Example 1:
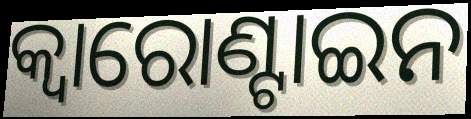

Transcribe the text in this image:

କ୍ୱାରୋଣ୍ଟାଇନ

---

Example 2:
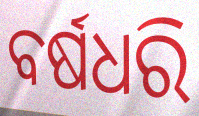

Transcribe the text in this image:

ବର୍ଷଧରି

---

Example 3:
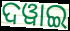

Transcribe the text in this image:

ଦୱାଇ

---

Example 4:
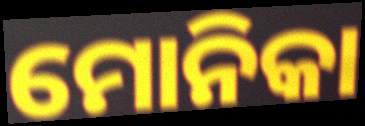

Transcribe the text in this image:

ମୋନିକା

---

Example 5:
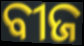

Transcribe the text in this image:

ବୀଜ